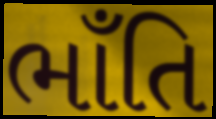
ભાઁતિ